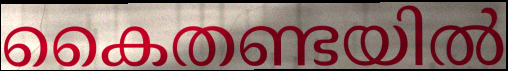
കൈതണ്ടയിൽ